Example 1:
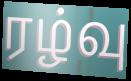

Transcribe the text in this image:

ரழ்வு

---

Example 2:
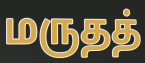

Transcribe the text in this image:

மருதத்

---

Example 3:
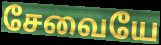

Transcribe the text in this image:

சேவையே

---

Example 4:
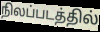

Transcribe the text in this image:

நிலப்படத்தில்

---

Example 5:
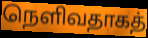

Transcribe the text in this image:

நெளிவதாகத்